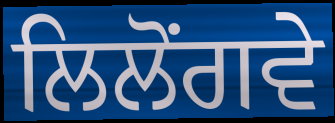
ਲਿਲੋਂਗਵੇ